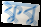
ফুবু